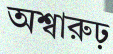
অশ্বারুঢ়